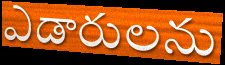
ఎడారులను